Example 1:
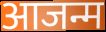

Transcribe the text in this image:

आजन्म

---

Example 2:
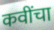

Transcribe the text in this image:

कवींचा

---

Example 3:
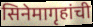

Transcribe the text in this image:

सिनेमागृहांची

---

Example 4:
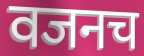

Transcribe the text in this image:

वजनच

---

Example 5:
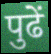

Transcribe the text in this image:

पुढें